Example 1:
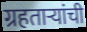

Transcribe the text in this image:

ग्रहताऱ्यांची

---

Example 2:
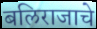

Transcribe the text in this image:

बलिराजाचे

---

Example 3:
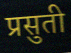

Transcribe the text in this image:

प्रसुती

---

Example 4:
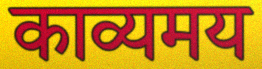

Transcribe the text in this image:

काव्यमय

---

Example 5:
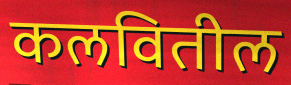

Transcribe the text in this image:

कलवितील